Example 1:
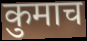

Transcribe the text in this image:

कुमाच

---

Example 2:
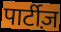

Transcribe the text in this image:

पार्टीज़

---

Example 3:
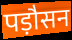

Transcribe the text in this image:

पड़ौसन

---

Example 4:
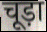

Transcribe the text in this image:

चूड़ा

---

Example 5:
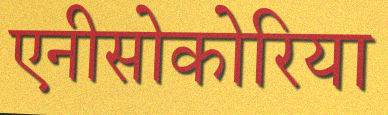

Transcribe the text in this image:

एनीसोकोरिया